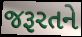
જરૂરતને